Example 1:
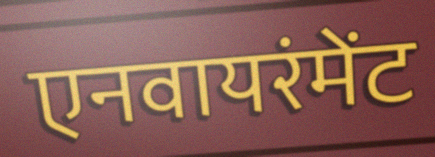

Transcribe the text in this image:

एनवायरंमेंट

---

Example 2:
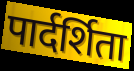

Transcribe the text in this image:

पार्दर्शिता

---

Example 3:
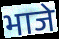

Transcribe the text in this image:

भाजे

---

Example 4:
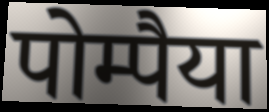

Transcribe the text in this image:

पोम्पैया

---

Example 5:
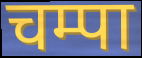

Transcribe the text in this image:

चम्पा